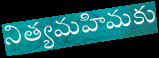
నిత్యమహిమకు